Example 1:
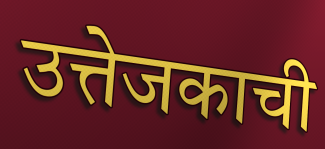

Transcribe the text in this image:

उत्तेजकाची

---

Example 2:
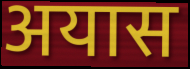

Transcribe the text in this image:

अयास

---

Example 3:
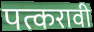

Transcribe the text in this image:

पत्करावी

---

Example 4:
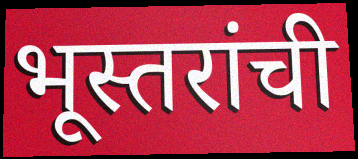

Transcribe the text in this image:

भूस्तरांची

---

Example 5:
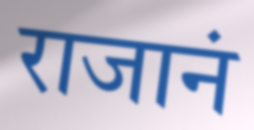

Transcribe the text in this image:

राजानं